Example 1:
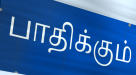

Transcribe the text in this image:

பாதிக்கும்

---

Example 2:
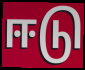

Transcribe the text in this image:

ஈடு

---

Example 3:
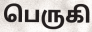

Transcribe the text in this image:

பெருகி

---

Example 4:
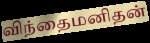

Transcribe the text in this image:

விந்தைமனிதன்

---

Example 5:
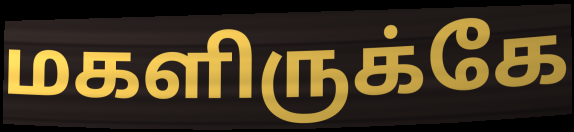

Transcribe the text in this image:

மகளிருக்கே